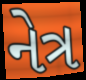
નેત્ર